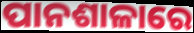
ପାନଶାଳାରେ